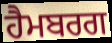
ਹੈਮਬਰਗ